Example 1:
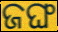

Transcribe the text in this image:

ଜଙ୍ଘ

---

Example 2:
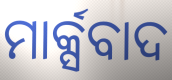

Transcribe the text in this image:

ମାର୍କ୍ସବାଦ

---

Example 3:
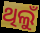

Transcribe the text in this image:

ଥିଲୁଁ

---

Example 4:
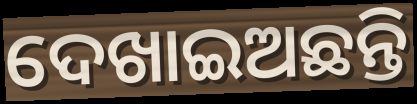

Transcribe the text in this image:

ଦେଖାଇଅଛନ୍ତି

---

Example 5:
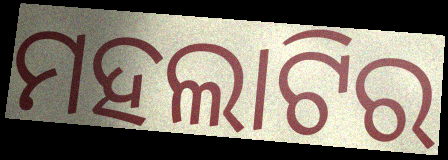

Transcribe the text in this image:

ମହଲାଟିର